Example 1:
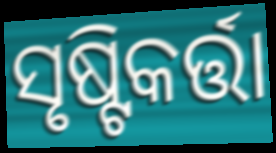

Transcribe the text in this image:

ସୃଷ୍ଟିକର୍ତ୍ତା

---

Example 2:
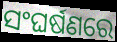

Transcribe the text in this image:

ସଂଘର୍ଷଣରେ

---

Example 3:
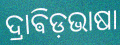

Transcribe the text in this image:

ଦ୍ରାଵିଡ଼ଭାଷା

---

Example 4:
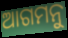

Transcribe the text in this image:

ଆଗମନୁ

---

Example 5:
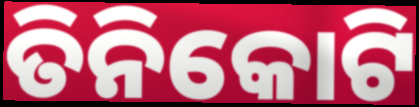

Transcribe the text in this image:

ତିନିକୋଟି